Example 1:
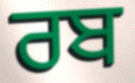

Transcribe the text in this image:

ਰਬ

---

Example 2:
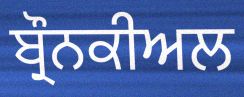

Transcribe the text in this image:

ਬ੍ਰੌਨਕੀਅਲ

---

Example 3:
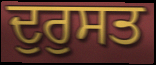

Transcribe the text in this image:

ਦੁਰੁਸਤ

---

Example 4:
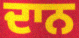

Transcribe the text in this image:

ਦਾਨ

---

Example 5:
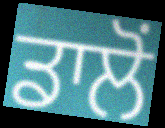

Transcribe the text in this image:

ਡਾਲੋਂ